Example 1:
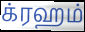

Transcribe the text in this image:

க்ரஹம்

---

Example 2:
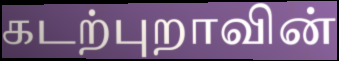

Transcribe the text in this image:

கடற்புறாவின்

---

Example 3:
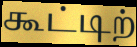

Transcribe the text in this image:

கூட்டிற்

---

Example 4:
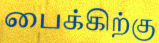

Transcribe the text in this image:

பைக்கிற்கு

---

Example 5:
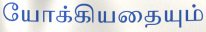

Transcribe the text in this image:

யோக்கியதையும்